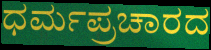
ಧರ್ಮಪ್ರಚಾರದ